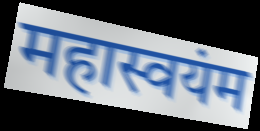
महास्वयंम